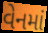
વેનમાં